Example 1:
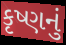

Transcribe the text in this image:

કૃષ્ણનું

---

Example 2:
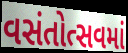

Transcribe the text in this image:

વસંતોત્સવમાં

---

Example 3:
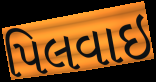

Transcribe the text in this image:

પિલવાઇ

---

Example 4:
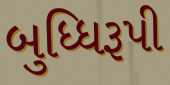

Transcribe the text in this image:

બુધ્ધિરૂપી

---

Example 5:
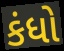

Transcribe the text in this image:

કંધો